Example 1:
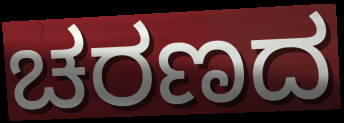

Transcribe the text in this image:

ಚರಣದ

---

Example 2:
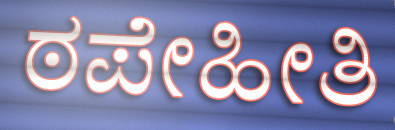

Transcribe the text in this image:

ಠಪೇಹೀತಿ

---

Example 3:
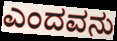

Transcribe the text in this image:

ಎಂದವನು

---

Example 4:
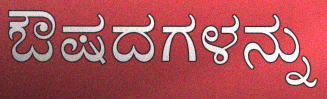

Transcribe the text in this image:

ಔಷದಗಳನ್ನು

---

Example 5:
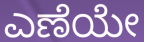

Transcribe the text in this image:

ಎಣೆಯೇ